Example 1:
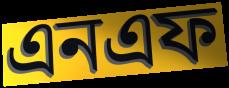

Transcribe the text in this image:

এনএফ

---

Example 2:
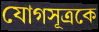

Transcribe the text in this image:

যোগসূত্রকে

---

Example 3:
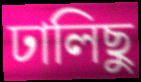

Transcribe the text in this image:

ঢালিছু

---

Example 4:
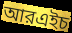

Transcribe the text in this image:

আরএইচ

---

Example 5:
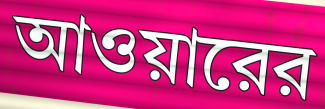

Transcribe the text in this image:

আওয়ারের